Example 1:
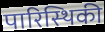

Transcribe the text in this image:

पारिस्थिकी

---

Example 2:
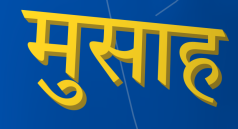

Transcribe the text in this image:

मुसाह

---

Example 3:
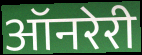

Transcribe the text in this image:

ऑनरेरी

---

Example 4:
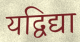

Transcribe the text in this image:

यद्विद्या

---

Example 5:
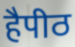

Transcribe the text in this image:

हैपीठ